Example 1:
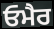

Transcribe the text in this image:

ਓਮੈਰ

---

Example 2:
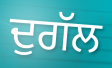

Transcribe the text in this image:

ਦੁਗੱਲ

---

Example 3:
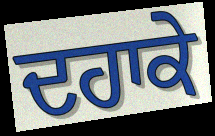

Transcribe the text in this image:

ਦਹਾਕੇ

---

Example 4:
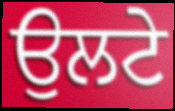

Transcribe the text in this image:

ਉਲਟੇ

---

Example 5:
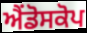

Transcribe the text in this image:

ਐਂਡੋਸਕੋਪ